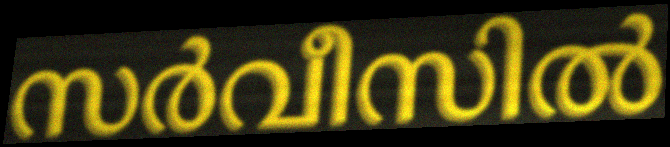
സർവീസിൽ